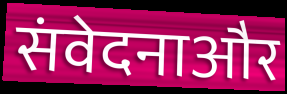
संवेदनाऔर